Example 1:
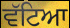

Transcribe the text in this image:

ਵੱਟਿਆ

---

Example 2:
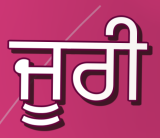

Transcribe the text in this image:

ਜੂਰੀ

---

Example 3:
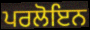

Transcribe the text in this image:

ਪਰਲੋਇਨ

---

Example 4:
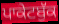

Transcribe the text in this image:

ਪਾਕੇਟਬੁੱਕ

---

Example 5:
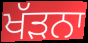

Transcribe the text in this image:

ਖੱੜਨਾ